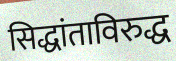
सिद्धांताविरुद्ध